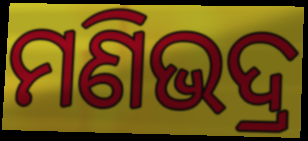
ମଣିଭଦ୍ର